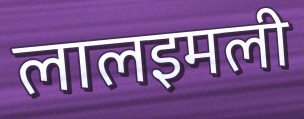
लालइमली